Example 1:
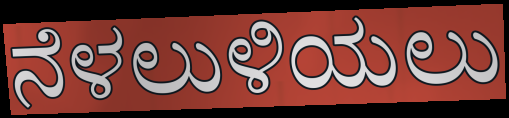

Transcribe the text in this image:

ನೆಳಲುಳಿಯಲು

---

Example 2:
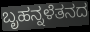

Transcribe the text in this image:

ಬೃಹನ್ನಳೆತನದ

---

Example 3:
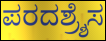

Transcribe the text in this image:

ಪರದಶ್ರ್ಶೆಸ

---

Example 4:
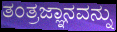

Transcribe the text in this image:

ತಂತ್ರಜ್ಞಾನವನ್ನು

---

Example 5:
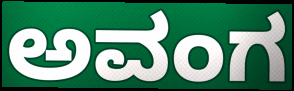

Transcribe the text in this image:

ಅವಂಗ